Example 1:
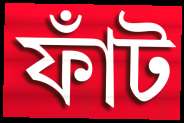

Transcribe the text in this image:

ফাঁট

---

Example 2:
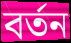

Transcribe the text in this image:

বৰ্তন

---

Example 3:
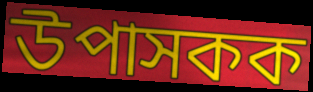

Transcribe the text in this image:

উপাসকক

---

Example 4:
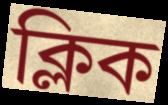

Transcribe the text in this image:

ক্লিক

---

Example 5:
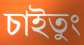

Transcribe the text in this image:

চাইতুং